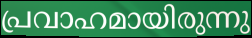
പ്രവാഹമായിരുന്നു